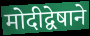
मोदीद्वेषाने